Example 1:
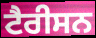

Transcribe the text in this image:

ਟੈਰੀਸਨ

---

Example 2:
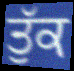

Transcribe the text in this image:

ਤੁੱਕ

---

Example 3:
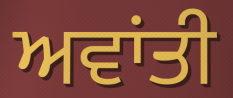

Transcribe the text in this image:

ਅਵਾਂਤੀ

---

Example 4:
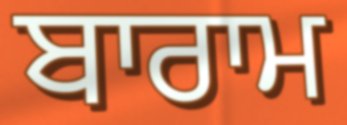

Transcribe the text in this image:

ਬਾਰਾਮ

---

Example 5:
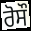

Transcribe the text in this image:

ਰੋਸੌ